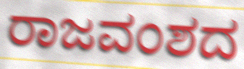
ರಾಜವಂಶದ